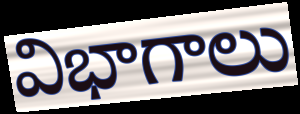
విభాగాలు